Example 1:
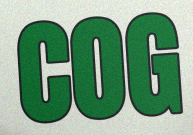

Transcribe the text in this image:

COG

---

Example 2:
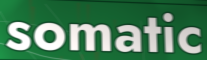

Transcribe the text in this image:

somatic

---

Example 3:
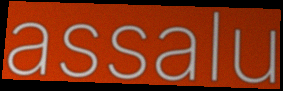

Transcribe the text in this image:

assalu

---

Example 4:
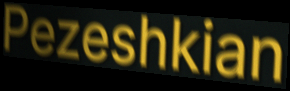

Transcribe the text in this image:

Pezeshkian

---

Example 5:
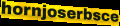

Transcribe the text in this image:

hornjoserbsce